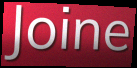
Joine